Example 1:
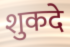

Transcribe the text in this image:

शुकदे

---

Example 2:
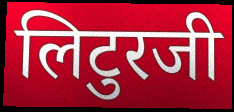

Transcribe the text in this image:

लिटुरजी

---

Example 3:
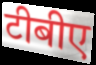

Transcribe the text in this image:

टीबीए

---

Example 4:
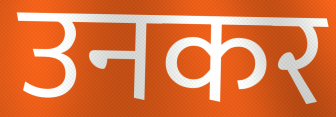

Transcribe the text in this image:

उनकर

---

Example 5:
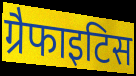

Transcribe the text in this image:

ग्रैफाइटिस